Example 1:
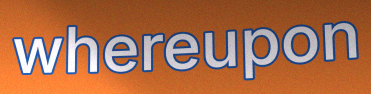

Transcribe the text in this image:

whereupon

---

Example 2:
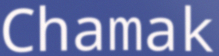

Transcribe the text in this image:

Chamak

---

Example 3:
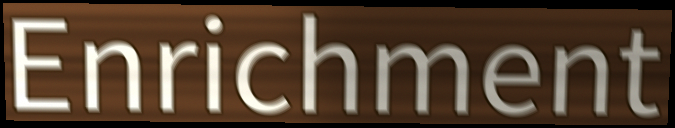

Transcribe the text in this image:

Enrichment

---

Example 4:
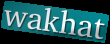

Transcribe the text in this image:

wakhat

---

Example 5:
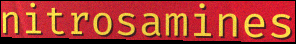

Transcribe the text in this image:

nitrosamines